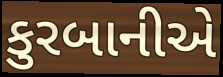
કુરબાનીએ